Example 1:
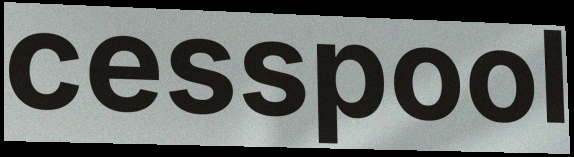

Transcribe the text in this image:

cesspool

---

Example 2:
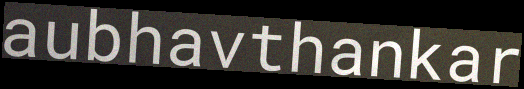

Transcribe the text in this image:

aubhavthankar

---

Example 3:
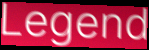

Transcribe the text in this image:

Legend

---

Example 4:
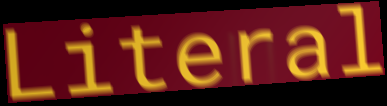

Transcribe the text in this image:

Literal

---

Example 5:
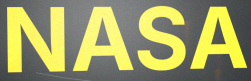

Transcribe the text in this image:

NASA